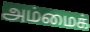
அம்மைக்